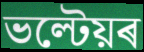
ভল্টেয়ৰ